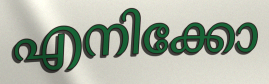
എനിക്കോ